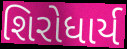
શિરોધાર્ય